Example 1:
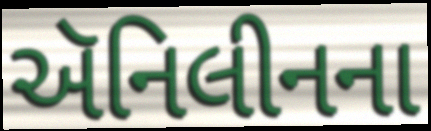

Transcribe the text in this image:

ઍનિલીનના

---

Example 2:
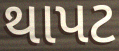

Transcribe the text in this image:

થાપટ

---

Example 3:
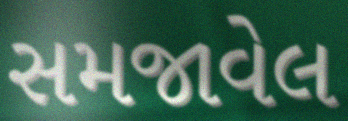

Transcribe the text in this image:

સમજાવેલ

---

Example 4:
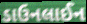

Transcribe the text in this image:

ડાઉનલાઈન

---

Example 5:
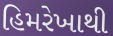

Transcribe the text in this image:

હિમરેખાથી